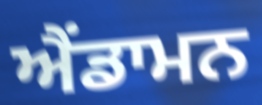
ਐਂਡਾਮਨ